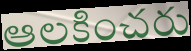
ఆలకించరు